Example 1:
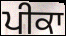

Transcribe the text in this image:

ਪੀਕਾ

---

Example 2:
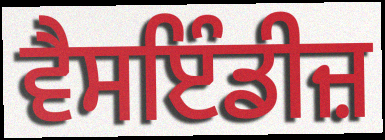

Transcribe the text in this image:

ਵੈਸਇੰਡੀਜ਼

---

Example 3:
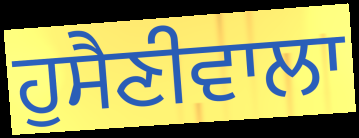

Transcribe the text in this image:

ਹੁਸੈਣੀਵਾਲਾ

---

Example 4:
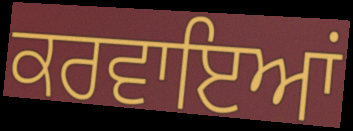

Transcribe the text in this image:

ਕਰਵਾਇਆਂ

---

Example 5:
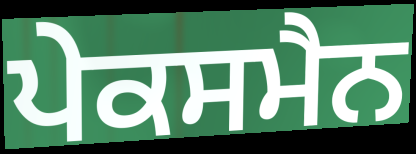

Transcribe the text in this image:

ਪੇਕਸਮੈਨ